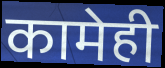
कामेही